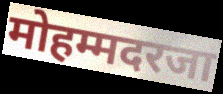
मोहम्मदरजा